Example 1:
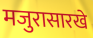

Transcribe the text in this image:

मजुरासारखे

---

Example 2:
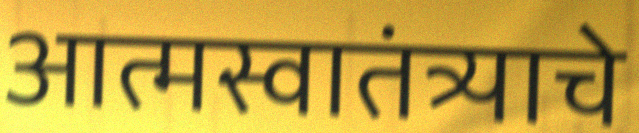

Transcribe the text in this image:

आत्मस्वातंत्र्याचे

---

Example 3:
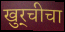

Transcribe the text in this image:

खुर्चीचा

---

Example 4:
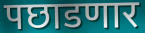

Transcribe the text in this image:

पछाडणार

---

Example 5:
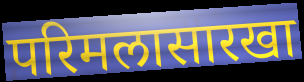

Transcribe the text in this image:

परिमलासारखा